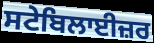
ਸਟੇਬਿਲਾਈਜ਼ਰ